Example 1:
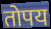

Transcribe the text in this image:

तोपय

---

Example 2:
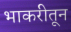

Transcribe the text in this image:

भाकरीतून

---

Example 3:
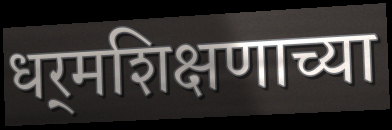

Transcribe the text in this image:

धर्मशिक्षणाच्या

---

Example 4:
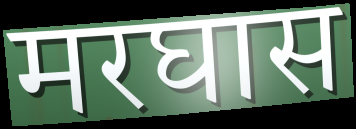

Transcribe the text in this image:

मरघास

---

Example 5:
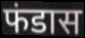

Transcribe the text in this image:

फंडास